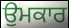
ਉਮਕਾਰ